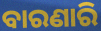
ବାରଣାରି